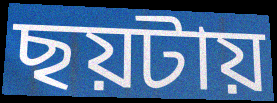
ছয়টায়